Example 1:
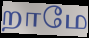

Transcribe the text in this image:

றாமே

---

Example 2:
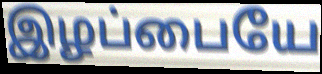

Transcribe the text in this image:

இழப்பையே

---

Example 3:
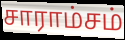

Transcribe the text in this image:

சாராம்சம்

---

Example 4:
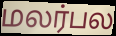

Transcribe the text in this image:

மலர்பல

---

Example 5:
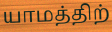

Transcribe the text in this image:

யாமத்திற்